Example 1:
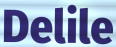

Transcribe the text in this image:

Delile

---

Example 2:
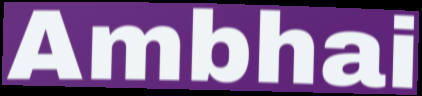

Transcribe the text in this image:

Ambhai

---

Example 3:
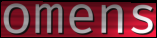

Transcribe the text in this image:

omens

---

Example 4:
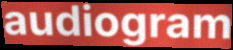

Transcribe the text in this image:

audiogram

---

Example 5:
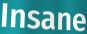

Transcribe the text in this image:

Insane